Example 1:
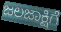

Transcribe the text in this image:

ಜಲಜಾಕ್ಷಿಗೆ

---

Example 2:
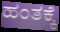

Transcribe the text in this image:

ಹಂತಕ್ಕೆ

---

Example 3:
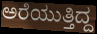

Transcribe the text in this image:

ಅರೆಯುತ್ತಿದ್ದ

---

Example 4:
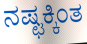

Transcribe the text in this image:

ನಷ್ಟಕ್ಕಿಂತ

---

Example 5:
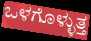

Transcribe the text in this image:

ಒಳಗೊಳ್ಳುತ್ತ